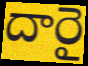
దారై